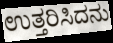
ಉತ್ತರಿಸಿದನು